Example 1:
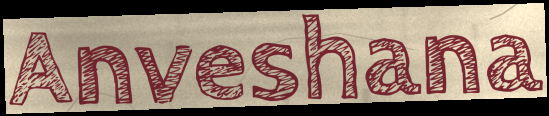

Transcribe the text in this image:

Anveshana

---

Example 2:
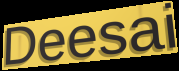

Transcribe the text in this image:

Deesai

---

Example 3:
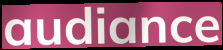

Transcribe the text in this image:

audiance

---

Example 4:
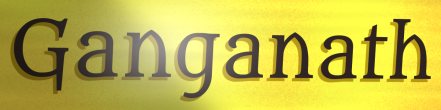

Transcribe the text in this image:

Ganganath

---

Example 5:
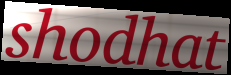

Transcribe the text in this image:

shodhat